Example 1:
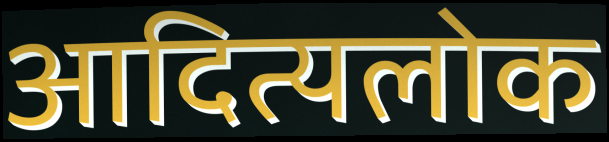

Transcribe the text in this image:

आदित्यलोक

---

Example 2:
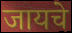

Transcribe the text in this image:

जायचे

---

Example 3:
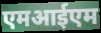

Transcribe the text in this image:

एमआईएम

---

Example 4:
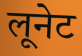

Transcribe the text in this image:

लूनेट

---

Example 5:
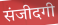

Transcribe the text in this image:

संजीदगी